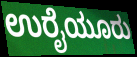
ಉರೈಯೂರು